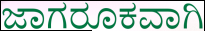
ಜಾಗರೂಕವಾಗಿ